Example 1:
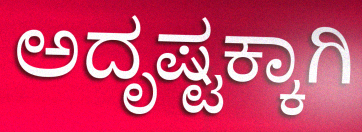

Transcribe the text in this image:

ಅದೃಷ್ಟಕ್ಕಾಗಿ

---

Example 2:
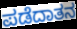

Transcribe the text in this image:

ಪಡೆದಾತನ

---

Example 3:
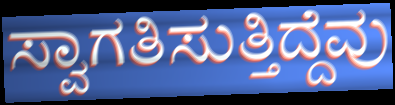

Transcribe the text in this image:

ಸ್ವಾಗತಿಸುತ್ತಿದ್ದೆವು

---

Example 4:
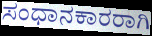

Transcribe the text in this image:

ಸಂಧಾನಕಾರರಾಗಿ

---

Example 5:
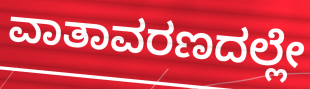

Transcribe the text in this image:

ವಾತಾವರಣದಲ್ಲೇ